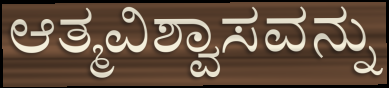
ಆತ್ಮವಿಶ್ವಾಸವನ್ನು